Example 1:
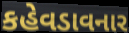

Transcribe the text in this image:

કહેવડાવનાર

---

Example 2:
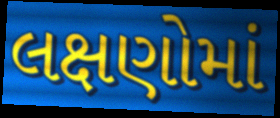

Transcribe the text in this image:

લક્ષણોમાં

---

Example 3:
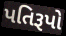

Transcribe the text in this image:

પતિરૂપો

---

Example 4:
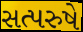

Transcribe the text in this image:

સત્પરુષે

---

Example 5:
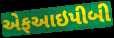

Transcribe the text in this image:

એફઆઇપીબી